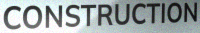
CONSTRUCTION